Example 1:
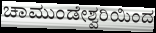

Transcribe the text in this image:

ಚಾಮುಂಡೇಶ್ವರಿಯಿಂದ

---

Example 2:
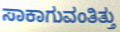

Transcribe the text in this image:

ಸಾಕಾಗುವಂತಿತ್ತು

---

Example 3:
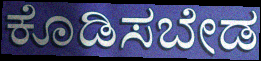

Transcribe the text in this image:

ಕೊಡಿಸಬೇಡ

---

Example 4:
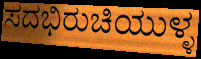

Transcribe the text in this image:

ಸದಭಿರುಚಿಯುಳ್ಳ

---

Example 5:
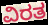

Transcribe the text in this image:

ವಿರತ